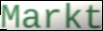
Markt